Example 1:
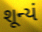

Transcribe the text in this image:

શૂન્યં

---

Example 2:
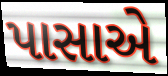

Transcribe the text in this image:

પાસાએ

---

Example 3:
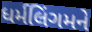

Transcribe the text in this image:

ધર્મલિંગમને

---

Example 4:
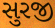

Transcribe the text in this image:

સુરજી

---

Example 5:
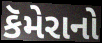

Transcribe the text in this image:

કૅમેરાનો